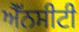
ਐੱਨਸੀਟੀ